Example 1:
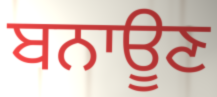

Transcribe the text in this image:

ਬਨਾਊਣ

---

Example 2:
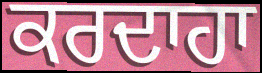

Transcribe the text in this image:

ਕਰਦਾਹਾ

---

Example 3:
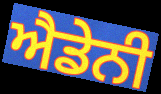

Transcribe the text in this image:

ਐਡੇਨੀ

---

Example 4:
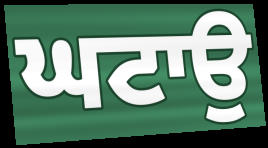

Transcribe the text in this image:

ਘਟਾਉ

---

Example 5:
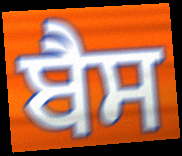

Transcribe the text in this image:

ਬੈਸ